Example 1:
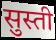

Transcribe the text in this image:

सुस्‍ती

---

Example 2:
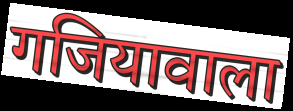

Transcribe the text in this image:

गजियावाला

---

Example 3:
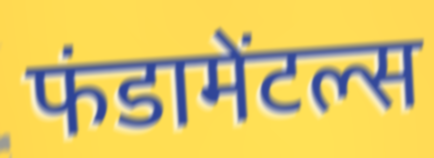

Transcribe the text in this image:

फंडामेंटल्स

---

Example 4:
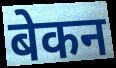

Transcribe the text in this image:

बेकन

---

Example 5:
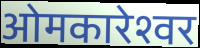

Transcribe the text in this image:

ओमकारेश्वर